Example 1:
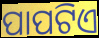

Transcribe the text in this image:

ପାପଟିଏ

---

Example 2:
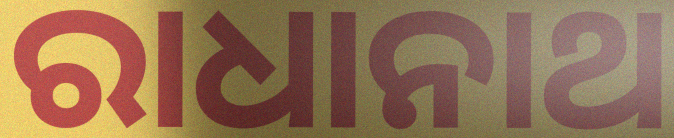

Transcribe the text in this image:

ରାଧାନାଥ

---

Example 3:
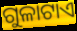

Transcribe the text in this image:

ଗୁଳାଟାଏ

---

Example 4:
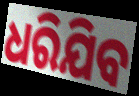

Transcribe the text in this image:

ଧରିଯିବ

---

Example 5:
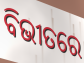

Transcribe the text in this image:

ବିଭୀତରେ